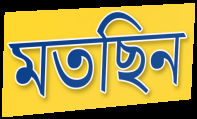
মতছিন